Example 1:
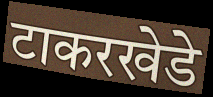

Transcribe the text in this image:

टाकरखेडे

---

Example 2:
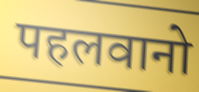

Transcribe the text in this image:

पहलवानो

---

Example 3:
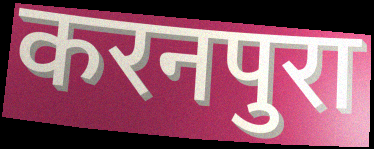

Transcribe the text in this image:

करनपुरा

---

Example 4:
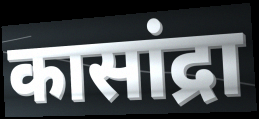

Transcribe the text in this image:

कासांद्रा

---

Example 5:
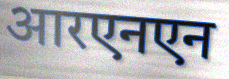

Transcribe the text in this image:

आरएनएन